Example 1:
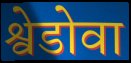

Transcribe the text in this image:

श्वेडोवा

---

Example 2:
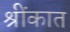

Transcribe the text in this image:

श्रींकात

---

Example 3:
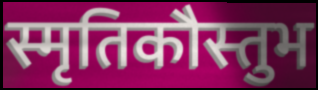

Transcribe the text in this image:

स्मृतिकौस्तुभ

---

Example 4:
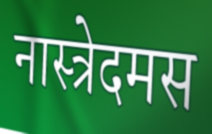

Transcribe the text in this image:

नास्त्रेदमस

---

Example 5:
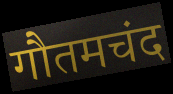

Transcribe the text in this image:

गौतमचंद